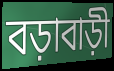
বড়াবাড়ী